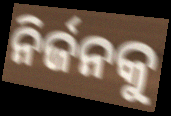
ନିର୍ଜନକୁ